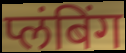
प्लंबिंग